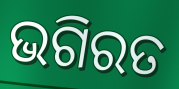
ଭଗିରତ